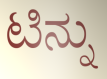
ಟಿನ್ನು